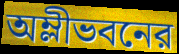
অম্লীভবনের